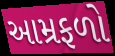
આમ્રફળો